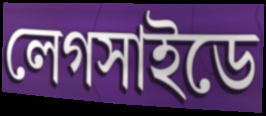
লেগসাইডে